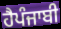
ਹੈਪੰਜਾਬੀ